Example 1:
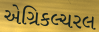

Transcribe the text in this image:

એગ્રિકલ્ચરલ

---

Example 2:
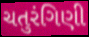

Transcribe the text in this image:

ચતુરંગિણી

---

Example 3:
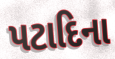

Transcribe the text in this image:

પટાદિના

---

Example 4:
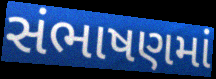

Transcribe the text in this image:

સંભાષણમાં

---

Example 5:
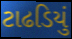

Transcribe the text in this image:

ટાઢડિયું